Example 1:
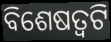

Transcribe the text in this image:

ବିଶେଷତ୍ୱଟି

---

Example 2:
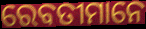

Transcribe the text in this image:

ରେବତୀମାନେ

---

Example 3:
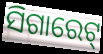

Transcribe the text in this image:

ସିଗାରେଟ୍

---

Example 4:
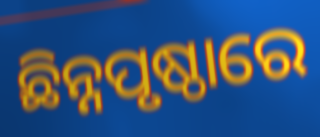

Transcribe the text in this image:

ଛିନ୍ନପୃଷ୍ଠାରେ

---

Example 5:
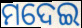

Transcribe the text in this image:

ମଦେଇ